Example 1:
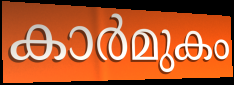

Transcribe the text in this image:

കാർമുകം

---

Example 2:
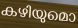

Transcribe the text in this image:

കഴിയുമൊ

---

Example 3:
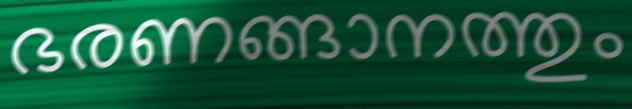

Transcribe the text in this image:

ഭരണങ്ങാനത്തും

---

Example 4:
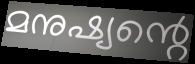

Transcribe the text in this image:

മനുഷ്യന്റെ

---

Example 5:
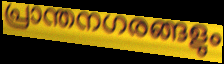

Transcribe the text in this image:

പ്രാന്തനഗരങ്ങളും